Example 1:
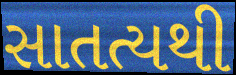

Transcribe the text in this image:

સાતત્યથી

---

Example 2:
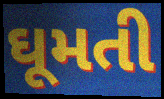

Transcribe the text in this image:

ઘૂમતી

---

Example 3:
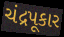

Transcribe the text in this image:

ચંદ્રપૂકાર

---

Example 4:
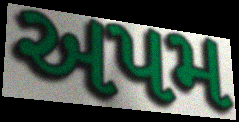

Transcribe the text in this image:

અપમ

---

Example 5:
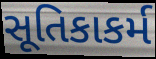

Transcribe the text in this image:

સૂતિકાકર્મ